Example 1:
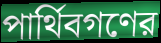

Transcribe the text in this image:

পার্থিবগণের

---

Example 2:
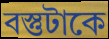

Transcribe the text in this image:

বস্তুটাকে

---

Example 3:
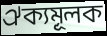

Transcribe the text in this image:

ঐক্যমূলক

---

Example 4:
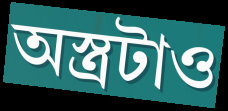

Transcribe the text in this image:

অস্ত্রটাও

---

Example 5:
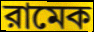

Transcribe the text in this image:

রামেক